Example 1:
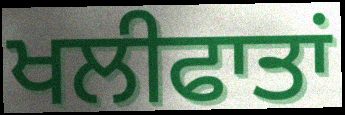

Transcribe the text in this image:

ਖਲੀਫਾਤਾਂ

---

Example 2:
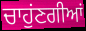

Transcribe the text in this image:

ਚਾਹੁਂਣਗੀਆਂ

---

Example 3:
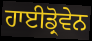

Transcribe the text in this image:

ਹਾਈਡ੍ਰੋਵੇਨ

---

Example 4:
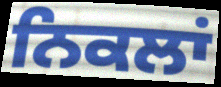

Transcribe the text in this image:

ਨਿਕਲਾਂ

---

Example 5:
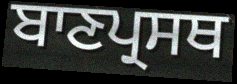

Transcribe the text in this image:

ਬਾਣਪ੍ਰਸਥ